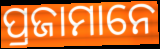
ପ୍ରଜାମାନେ